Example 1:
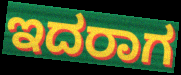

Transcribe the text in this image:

ಇದರಾಗ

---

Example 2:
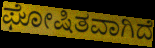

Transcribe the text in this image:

ಘೋಷಿತವಾಗಿದೆ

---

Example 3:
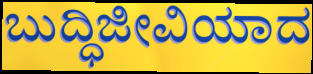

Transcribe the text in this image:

ಬುದ್ಧಿಜೀವಿಯಾದ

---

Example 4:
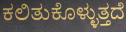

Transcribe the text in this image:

ಕಲಿತುಕೊಳ್ಳುತ್ತದೆ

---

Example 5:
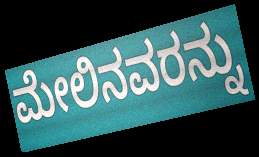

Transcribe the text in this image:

ಮೇಲಿನವರನ್ನು